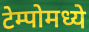
टेम्पोमध्ये